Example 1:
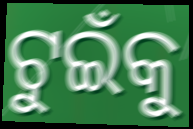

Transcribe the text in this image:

ଟୁଇଁକୁ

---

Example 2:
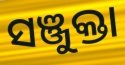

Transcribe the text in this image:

ସଞ୍ଜୁକ୍ତା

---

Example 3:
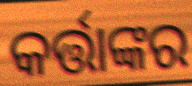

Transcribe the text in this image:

କର୍ତ୍ତାଙ୍କର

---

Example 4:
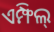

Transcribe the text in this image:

ଏମ୍ଫିଲ୍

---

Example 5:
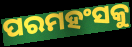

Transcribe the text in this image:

ପରମହଂସକୁ